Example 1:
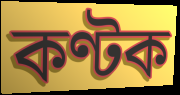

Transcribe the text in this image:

কণ্টক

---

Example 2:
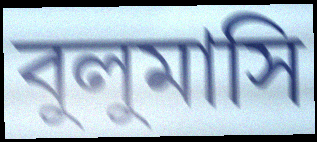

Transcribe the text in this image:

বুলুমাসি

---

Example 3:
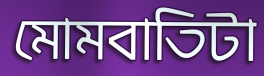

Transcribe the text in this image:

মোমবাতিটা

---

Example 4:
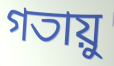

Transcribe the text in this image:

গতায়ু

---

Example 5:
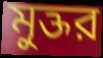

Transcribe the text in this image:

মুক্তর